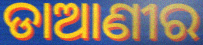
ଡାଆଣୀର